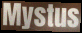
Mystus